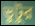
ভুটুর